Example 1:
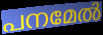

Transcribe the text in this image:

പനമേൽ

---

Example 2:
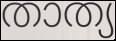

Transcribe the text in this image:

താത്യ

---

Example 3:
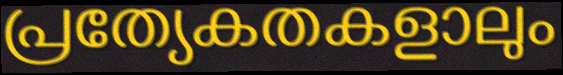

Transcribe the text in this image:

പ്രത്യേകതകളാലും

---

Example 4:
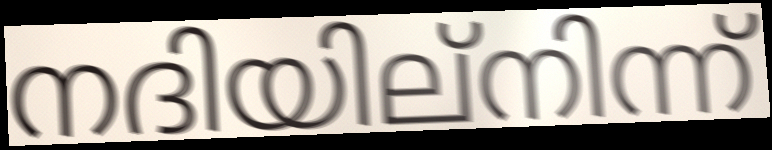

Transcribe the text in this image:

നദിയില്നിന്ന്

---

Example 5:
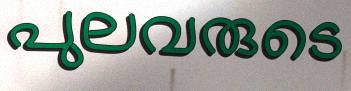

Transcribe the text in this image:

പുലവരുടെ